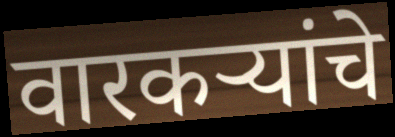
वारकऱ्यांचे